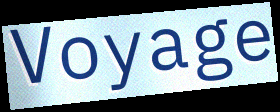
Voyage